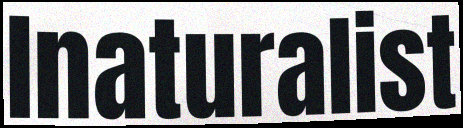
Inaturalist